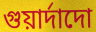
গুয়ার্দাদো